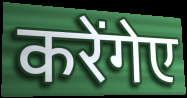
करेंगेए